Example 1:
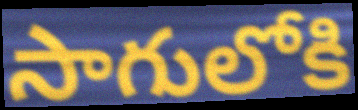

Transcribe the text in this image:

సాగులోకి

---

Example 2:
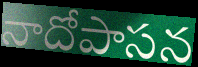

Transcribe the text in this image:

నాదోపాసన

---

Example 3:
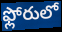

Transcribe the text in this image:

ఫ్లోరులో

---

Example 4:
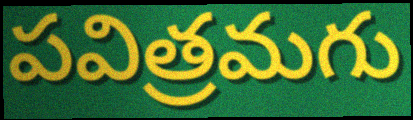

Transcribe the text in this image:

పవిత్రమగు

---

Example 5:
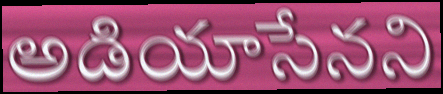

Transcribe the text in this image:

అడియాసేనని